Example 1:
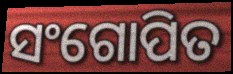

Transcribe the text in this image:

ସଂଗୋପିତ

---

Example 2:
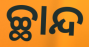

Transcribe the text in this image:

ଚ୍ଛାନ୍ଦ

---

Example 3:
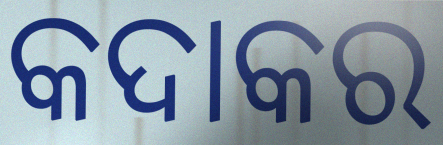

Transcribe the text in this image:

କଦାକର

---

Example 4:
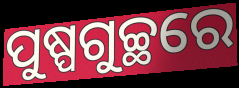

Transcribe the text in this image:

ପୁଷ୍ପଗୁଚ୍ଛରେ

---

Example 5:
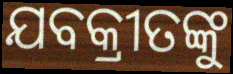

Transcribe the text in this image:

ଯବକ୍ରୀତଙ୍କୁ